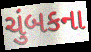
ચુંબકના